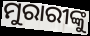
ମୁରାରୀଙ୍କୁ